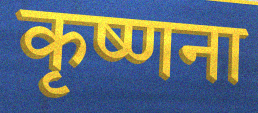
कृष्णना